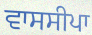
ਵਾਸਸੀਪਾ